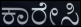
ಕಾರೇಸಿ